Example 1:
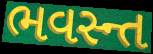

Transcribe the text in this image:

ભવસ્ન્ત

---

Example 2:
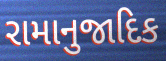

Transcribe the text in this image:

રામાનુજાદિક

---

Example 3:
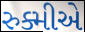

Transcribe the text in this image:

રુક્મીએ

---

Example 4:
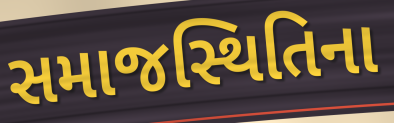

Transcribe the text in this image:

સમાજસ્થિતિના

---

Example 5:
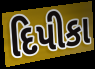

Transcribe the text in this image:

દિપીકા